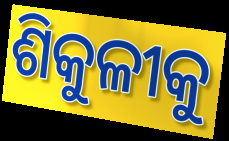
ଶିକୁଳୀକୁ